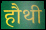
हौथी